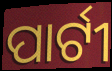
ପାର୍ଟୀ